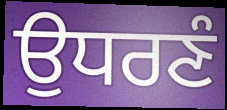
ਉਧਰਣੰ